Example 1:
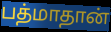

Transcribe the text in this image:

பத்மாதான்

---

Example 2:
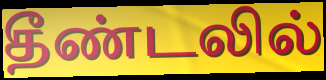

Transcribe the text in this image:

தீண்டலில்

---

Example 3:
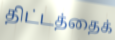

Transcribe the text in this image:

திட்டத்தைக்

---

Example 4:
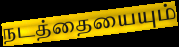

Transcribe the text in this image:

நடத்தையையும்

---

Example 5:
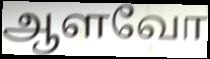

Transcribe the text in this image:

ஆளவோ